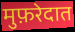
मुफ़रेदात